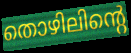
തൊഴിലിന്റെ